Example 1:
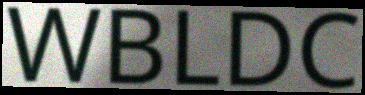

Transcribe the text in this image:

WBLDC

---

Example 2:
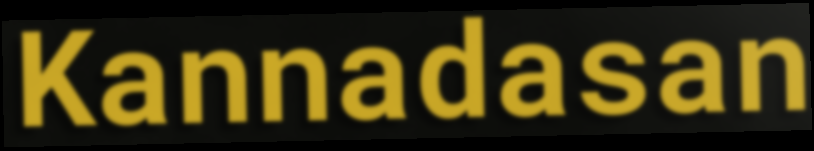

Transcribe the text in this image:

Kannadasan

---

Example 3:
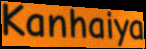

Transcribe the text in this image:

Kanhaiya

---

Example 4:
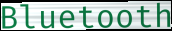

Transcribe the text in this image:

Bluetooth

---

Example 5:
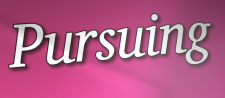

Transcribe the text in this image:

Pursuing